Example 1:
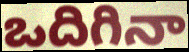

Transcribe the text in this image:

ఒదిగినా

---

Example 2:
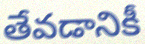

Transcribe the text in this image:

తేవడానికీ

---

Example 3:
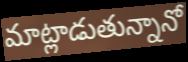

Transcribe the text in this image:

మాట్లాడుతున్నానో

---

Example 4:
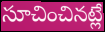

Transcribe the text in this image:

సూచించినట్లే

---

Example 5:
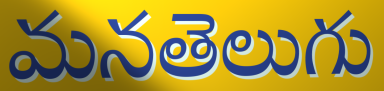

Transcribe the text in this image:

మనతెలుగు